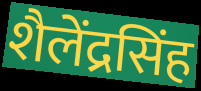
शैलेंद्रसिंह